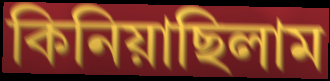
কিনিয়াছিলাম